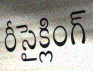
రీసైక్లింగ్